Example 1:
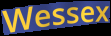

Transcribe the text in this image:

Wessex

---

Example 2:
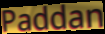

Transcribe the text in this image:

Paddan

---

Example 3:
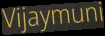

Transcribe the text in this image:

Vijaymuni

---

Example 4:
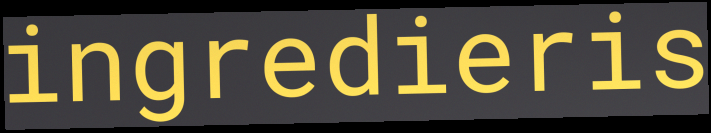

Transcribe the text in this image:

ingredieris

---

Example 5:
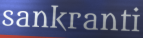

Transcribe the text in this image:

sankranti